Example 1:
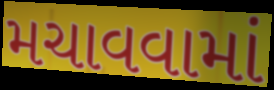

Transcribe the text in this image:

મચાવવામાં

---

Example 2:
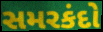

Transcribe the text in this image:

સમરકંદો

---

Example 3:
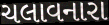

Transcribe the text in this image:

ચલાવનારા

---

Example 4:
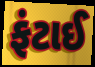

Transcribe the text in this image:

ફંટાઈ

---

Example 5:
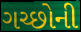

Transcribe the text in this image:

ગચ્છોની